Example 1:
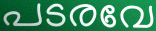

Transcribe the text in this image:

പടരവേ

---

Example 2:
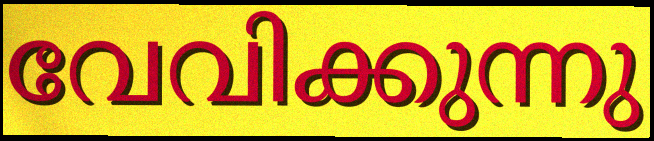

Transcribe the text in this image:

വേവിക്കുന്നു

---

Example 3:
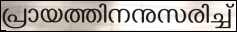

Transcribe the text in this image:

പ്രായത്തിനനുസരിച്ച്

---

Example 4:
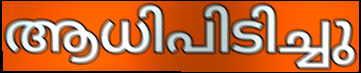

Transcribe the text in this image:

ആധിപിടിച്ചു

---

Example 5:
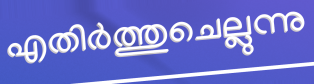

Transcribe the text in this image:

എതിർത്തുചെല്ലുന്നു